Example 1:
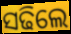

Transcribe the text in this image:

ସଢିଲେ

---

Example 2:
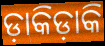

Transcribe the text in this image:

ଡ଼ାକିଡ଼ାକି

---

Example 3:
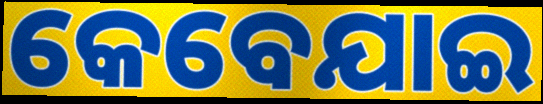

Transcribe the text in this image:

କେବେଯାଇ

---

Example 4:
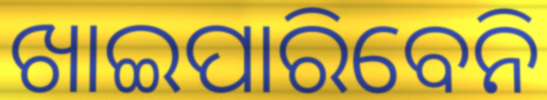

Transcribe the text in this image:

ଖାଇପାରିବେନି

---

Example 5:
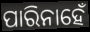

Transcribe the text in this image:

ପାରିନାହେଁ